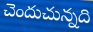
చెందుచున్నది